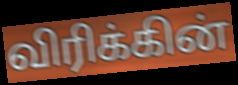
விரிக்கின்